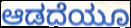
ಆಡದೆಯೂ